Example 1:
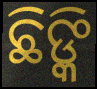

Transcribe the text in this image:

ଛିଙ୍କି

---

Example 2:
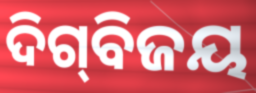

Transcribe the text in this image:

ଦିଗ୍‍ବିଜୟ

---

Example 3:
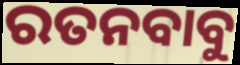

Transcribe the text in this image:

ରତନବାବୁ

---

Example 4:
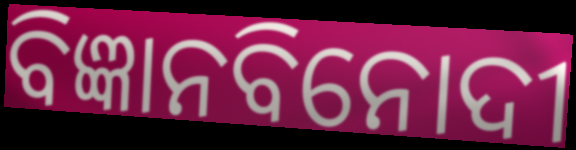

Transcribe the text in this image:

ବିଜ୍ଞାନବିନୋଦୀ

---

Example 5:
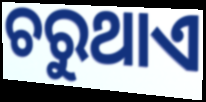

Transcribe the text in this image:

ଚରୁଥାଏ